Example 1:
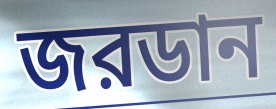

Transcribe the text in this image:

জরডান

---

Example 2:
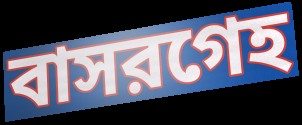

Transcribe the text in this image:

বাসরগেহ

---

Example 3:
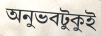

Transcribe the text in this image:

অনুভবটুকুই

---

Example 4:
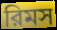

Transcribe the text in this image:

রিমস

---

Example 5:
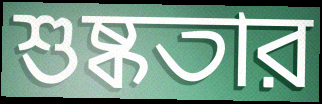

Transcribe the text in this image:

শুষ্কতার